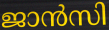
ജാൻസി